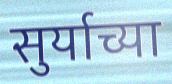
सुर्याच्या